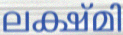
ലക്ഷ്‌മി